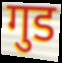
गुड